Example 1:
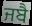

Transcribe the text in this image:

ਜਬੈ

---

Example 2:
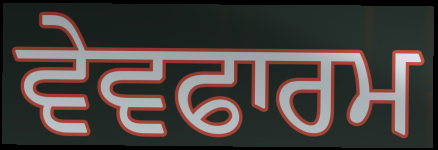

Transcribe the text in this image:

ਵੇਵਫਾਰਮ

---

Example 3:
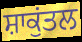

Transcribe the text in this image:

ਸ਼ਾਕੁਂਤਲ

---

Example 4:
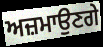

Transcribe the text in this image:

ਅਜ਼ਮਾਉਣਗੇ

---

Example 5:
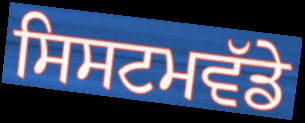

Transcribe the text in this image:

ਸਿਸਟਮਵੱਡੇ